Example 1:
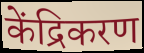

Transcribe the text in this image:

केंद्रिकरण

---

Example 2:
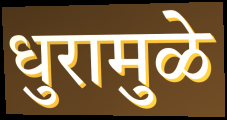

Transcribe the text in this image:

धुरामुळे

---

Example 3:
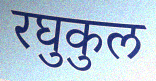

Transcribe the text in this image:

रघुकुल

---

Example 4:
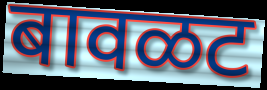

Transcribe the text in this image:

बावळट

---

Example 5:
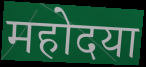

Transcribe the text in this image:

महोदया